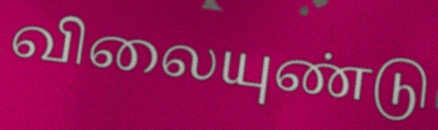
விலையுண்டு